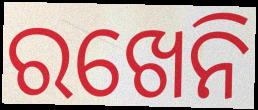
ରଖେନି